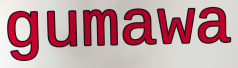
gumawa